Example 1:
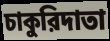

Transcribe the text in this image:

চাকুরিদাতা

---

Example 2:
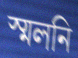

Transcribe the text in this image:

স্মলনি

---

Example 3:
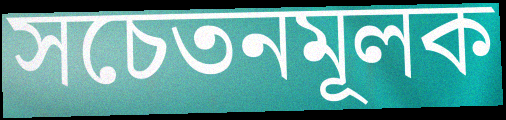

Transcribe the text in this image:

সচেতনমূলক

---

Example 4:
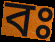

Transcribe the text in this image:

বঃ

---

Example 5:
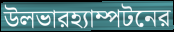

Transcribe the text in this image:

উলভারহ্যাম্পটনের